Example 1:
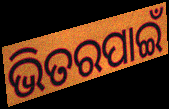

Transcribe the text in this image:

ଭିତରପାଇଁ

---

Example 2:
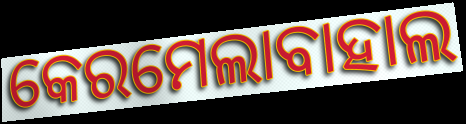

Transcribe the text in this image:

କେରମେଲାବାହାଲ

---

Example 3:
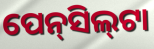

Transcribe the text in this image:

ପେନ୍‌ସିଲ୍‍ଟା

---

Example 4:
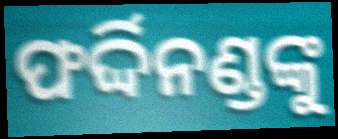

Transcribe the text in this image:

ଫର୍ଦ୍ଦିନଣ୍ଡଙ୍କୁ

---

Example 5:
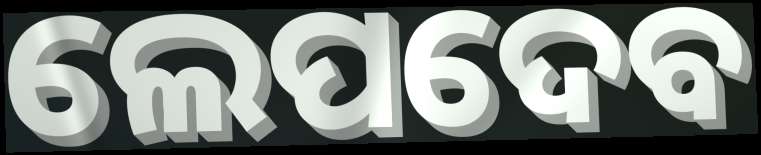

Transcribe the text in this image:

ଲେପଦେବ